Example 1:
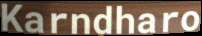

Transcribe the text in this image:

Karndharo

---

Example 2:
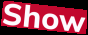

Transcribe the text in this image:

Show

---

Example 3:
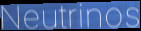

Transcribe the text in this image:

Neutrinos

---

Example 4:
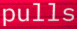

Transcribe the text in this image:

pulls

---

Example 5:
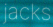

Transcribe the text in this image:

jacks